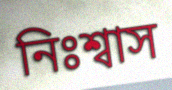
নিঃশ্বাস